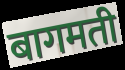
बागमती